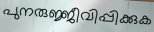
പുനരുജ്ജീവിപ്പിക്കുക